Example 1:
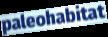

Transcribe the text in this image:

paleohabitat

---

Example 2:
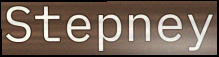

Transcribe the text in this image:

Stepney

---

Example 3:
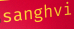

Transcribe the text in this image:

sanghvi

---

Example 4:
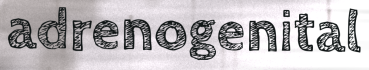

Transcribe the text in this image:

adrenogenital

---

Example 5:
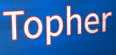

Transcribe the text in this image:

Topher